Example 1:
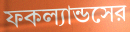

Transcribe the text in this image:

ফকল্যান্ডসের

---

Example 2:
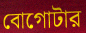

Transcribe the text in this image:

বোগোটার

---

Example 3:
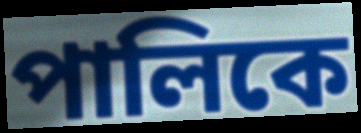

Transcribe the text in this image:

পালিকে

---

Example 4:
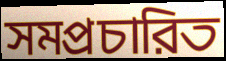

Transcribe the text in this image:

সমপ্রচারিত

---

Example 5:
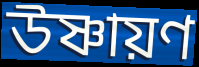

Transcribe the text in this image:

উষ্ণায়ণ